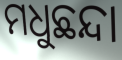
ମଧୁଛନ୍ଦା